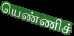
யெண்ணிச்